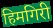
हिमगिरी